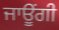
ਜਾਊਂਗੀ